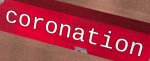
coronation